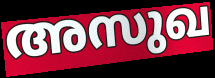
അസുഖ